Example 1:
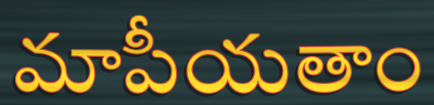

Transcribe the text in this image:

మాపీయతాం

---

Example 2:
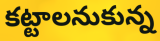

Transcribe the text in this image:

కట్టాలనుకున్న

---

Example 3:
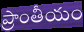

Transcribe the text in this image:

ప్రాంతీయం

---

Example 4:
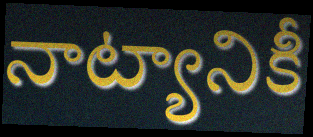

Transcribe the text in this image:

నాట్యానికీ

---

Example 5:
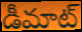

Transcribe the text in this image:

డీమాట్